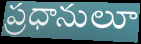
ప్రధానులూ